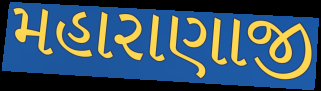
મહારાણાજી